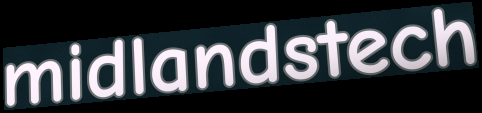
midlandstech